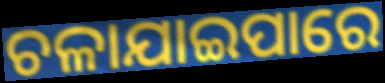
ଚଳାଯାଇପାରେ